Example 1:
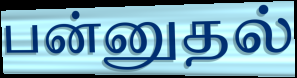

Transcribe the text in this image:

பன்னுதல்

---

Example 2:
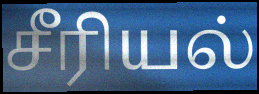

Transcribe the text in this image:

சீரியல்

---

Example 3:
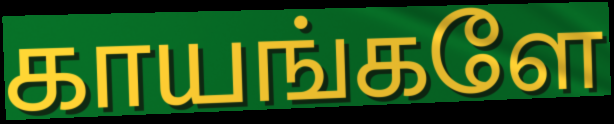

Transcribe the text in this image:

காயங்களே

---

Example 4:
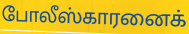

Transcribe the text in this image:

போலீஸ்காரனைக்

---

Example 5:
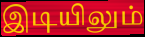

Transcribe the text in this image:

இடியிலும்